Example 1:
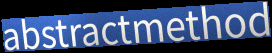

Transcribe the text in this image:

abstractmethod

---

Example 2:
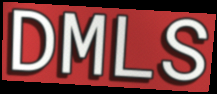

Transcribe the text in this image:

DMLS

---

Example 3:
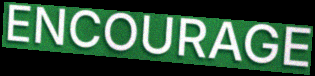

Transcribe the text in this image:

ENCOURAGE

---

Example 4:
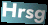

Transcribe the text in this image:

Hrsg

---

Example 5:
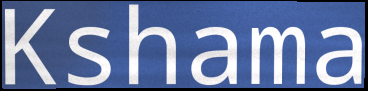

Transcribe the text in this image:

Kshama